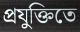
প্রযুক্তিতে